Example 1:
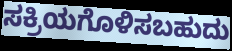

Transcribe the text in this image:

ಸಕ್ರಿಯಗೊಳಿಸಬಹುದು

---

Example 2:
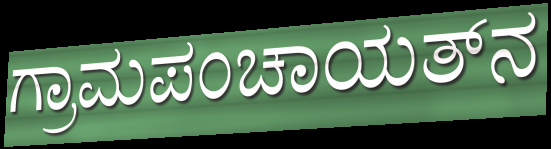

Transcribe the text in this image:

ಗ್ರಾಮಪಂಚಾಯತ್‌ನ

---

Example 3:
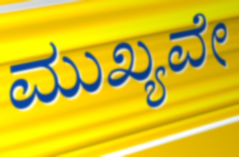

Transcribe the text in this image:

ಮುಖ್ಯವೇ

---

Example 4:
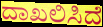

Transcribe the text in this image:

ದಾಖಲಿಸಿದೆ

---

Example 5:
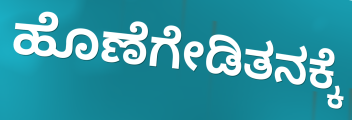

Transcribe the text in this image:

ಹೊಣೆಗೇಡಿತನಕ್ಕೆ